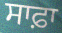
ਸਾਫ਼ਾ